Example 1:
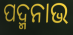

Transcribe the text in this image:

ପଦ୍ମନାଭ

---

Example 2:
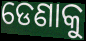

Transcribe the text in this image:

ଡେଣାକୁ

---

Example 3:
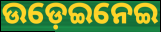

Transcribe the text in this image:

ଉଡ଼େଇନେଇ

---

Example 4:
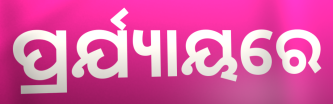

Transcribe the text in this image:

ପ୍ରର୍ଯ୍ୟାୟରେ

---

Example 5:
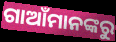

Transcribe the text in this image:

ଗାଆଁମାନଙ୍କରୁ